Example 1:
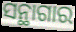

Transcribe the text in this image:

ସନ୍ଥାଗାର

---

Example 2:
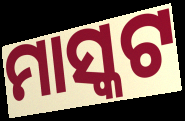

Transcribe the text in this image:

ମାସ୍କଟ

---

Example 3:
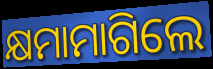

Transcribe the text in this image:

କ୍ଷମାମାଗିଲେ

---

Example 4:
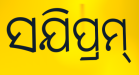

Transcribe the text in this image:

ସଯିପ୍ରମ୍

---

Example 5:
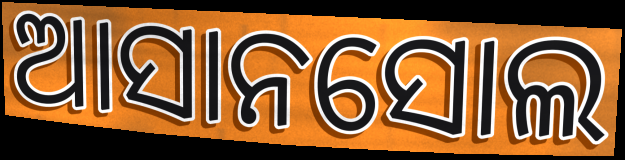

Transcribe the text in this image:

ଆସାନସୋଲ